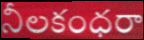
నీలకంధరా